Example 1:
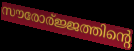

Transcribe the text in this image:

സൗരോര്ജ്ജത്തിന്റെ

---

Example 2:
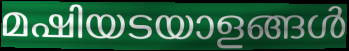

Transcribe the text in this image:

മഷിയടയാളങ്ങൾ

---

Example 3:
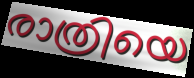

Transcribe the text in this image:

രാത്രിയെ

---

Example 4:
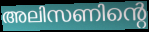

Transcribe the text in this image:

അലിസണിന്റെ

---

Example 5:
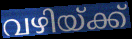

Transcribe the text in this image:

വഴിയ്ക്ക്